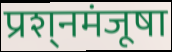
प्रश्नमंजूषा